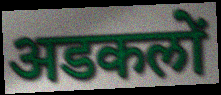
अडकलों